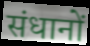
संधानों